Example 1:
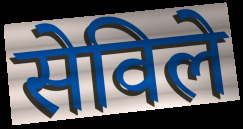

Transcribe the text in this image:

सेविले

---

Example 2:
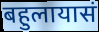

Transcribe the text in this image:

बहुलायासं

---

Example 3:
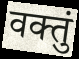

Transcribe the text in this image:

वक्तुं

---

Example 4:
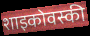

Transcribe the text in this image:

शाइकोवस्की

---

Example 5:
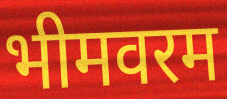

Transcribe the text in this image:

भीमवरम